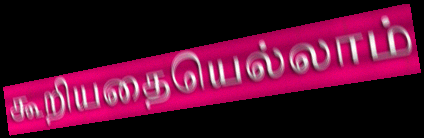
கூறியதையெல்லாம்